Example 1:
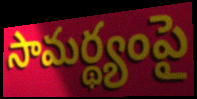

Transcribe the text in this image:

సామర్థ్యంపై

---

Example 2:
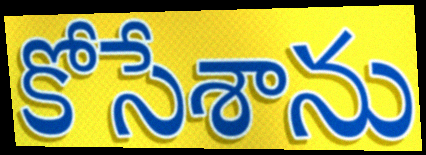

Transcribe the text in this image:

కోసేశాను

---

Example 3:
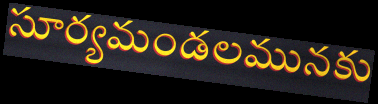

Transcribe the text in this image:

సూర్యమండలమునకు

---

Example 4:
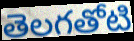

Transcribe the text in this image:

తెలగతోటి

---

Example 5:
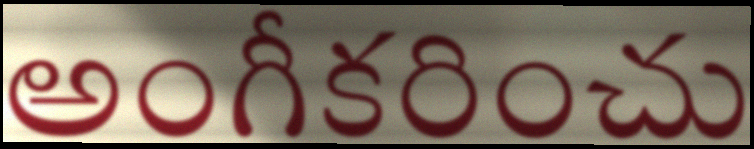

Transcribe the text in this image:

అంగీకరించు